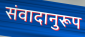
संवादानुरूप